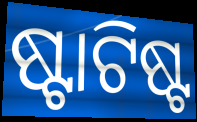
ଷ୍ଟାଟିଷ୍ଟ